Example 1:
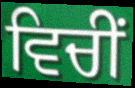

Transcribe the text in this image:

ਵਿਚੀਂ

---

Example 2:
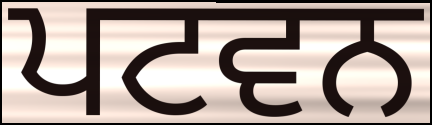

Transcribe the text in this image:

ਪਟਵਨ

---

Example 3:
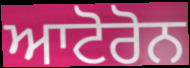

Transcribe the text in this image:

ਆਟੋਰੋਨ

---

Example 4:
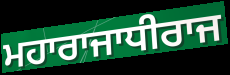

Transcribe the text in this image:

ਮਹਾਰਾਜਾਧੀਰਾਜ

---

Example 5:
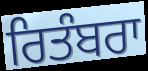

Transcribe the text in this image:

ਰਿਤੰਬਰਾ